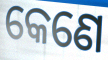
କେଣେ